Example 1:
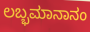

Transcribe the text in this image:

ಲಬ್ಭಮಾನಾನಂ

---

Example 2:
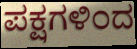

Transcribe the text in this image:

ಪಕ್ಷಗಳಿಂದ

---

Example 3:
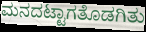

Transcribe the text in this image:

ಮನದಟ್ಟಾಗತೊಡಗಿತು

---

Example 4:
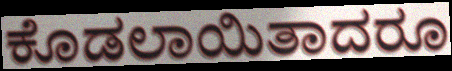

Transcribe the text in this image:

ಕೊಡಲಾಯಿತಾದರೂ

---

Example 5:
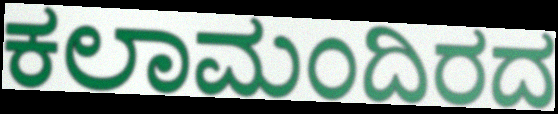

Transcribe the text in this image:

ಕಲಾಮಂದಿರದ